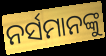
ନର୍ସମାନଙ୍କୁ